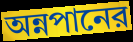
অন্নপানের